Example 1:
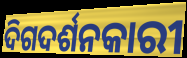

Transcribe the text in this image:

ଦିଗଦର୍ଶନକାରୀ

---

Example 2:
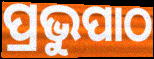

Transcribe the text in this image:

ପ୍ରଭୁପାଠ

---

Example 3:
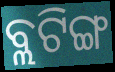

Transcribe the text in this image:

ବ୍ଲଟିଙ୍ଗ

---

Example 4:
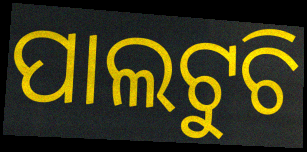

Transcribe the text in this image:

ପାଲଟୁଚି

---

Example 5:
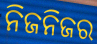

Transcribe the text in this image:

ନିଜନିଜର